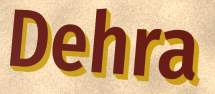
Dehra